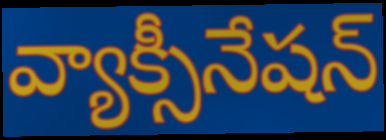
వ్యాక్సీనేషన్